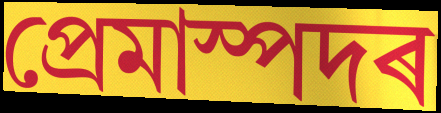
প্ৰেমাস্পদৰ